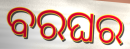
ବରଘର